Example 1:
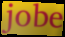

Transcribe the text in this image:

jobe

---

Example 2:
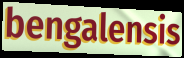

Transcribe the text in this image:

bengalensis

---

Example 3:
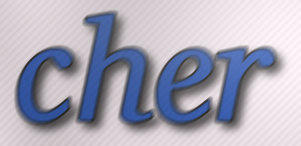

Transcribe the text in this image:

cher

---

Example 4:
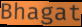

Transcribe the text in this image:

Bhagat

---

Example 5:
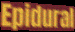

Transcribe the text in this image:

Epidural